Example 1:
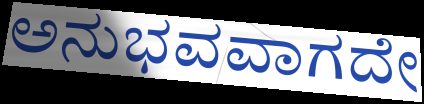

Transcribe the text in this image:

ಅನುಭವವಾಗದೇ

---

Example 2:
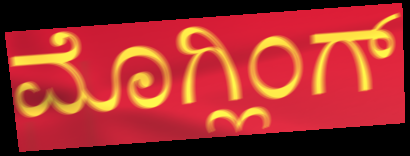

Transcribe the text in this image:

ಮೊಗ್ಲಿಂಗ್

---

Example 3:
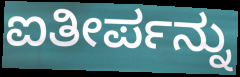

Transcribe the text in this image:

ಐತೀರ್ಪನ್ನು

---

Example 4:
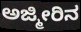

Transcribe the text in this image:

ಅಜ್ಮೀರಿನ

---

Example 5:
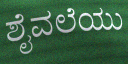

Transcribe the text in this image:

ಶೈವಲೆಯು